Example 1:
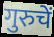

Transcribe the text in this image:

गुरुचें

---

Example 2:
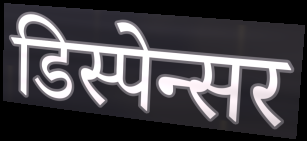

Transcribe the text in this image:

डिस्पेन्सर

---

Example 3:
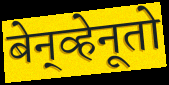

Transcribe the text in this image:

बेन्‌व्हेनूतो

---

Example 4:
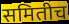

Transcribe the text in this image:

समितीच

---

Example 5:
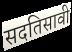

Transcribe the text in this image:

सदतिसावी